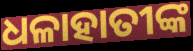
ଧଳାହାତୀଙ୍କ